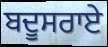
ਬਦੂਸਰਾਏ